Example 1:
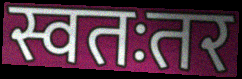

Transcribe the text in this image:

स्वतःतर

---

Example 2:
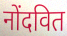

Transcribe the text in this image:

नोंदवित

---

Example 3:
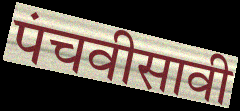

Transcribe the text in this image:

पंचवीसावी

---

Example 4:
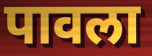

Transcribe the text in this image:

पावला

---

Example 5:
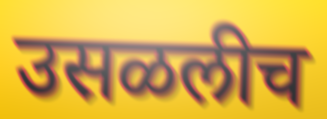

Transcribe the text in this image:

उसळलीच